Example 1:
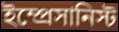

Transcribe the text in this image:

ইম্প্রেসানিস্ট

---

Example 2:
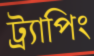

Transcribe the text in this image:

ট্র্যাপিং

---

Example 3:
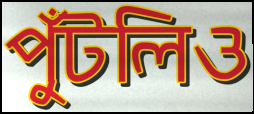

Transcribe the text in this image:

পুঁটলিও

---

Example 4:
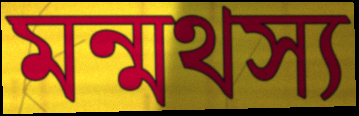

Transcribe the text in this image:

মন্মথস্য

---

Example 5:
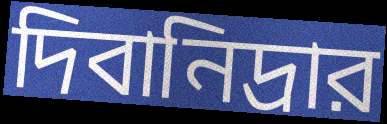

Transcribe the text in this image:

দিবানিদ্রার